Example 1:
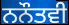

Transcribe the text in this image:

ਨਨੌਤਵੀ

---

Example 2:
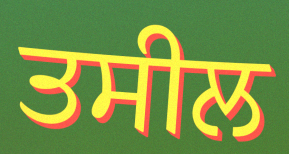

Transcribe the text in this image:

ਤਸੀਲ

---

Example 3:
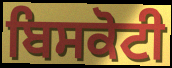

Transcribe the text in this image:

ਬਿਸਕੋਟੀ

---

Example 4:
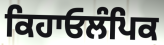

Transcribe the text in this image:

ਕਿਹਾਓਲੰਪਿਕ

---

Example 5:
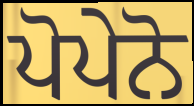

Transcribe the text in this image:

ਪੋਪੇਨੋ